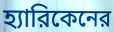
হ্যারিকেনের